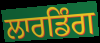
ਲਾਰਡਿੰਗ